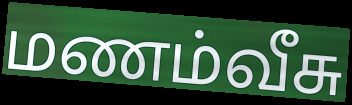
மணம்வீசு